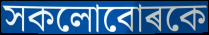
সকলোবোৰকে